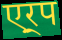
एर्प